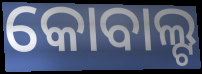
କୋବାଲ୍ଟ